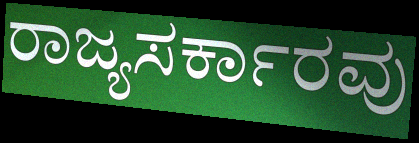
ರಾಜ್ಯಸರ್ಕಾರವು